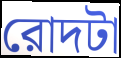
রোদটা